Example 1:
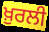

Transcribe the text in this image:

ਖ਼ੁਰਲੀ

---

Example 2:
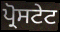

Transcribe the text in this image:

ਪ੍ਰੋਸਟੇਟ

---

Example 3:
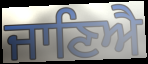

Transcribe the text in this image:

ਜਾਣਿਐ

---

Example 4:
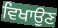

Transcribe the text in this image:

ਵਿਖਾਉਣ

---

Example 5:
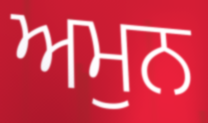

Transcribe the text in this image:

ਅਮੁਨ